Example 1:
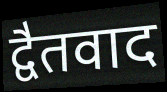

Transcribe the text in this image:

द्वैतवाद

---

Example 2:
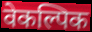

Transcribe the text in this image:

वेकल्पिक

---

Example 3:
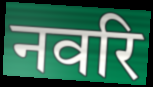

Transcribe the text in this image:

नवरि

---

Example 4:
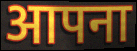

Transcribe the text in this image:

आपना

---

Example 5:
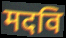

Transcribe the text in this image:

मदवि